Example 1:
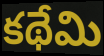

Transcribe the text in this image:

కథేమి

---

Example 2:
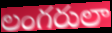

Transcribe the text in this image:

లంగరులా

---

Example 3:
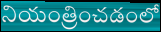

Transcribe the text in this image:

నియంత్రించడంలో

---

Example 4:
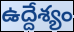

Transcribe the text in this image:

ఉద్దేశ్యం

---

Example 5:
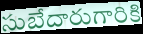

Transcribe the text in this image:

సుబేదారుగారికి